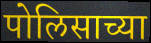
पोलिसाच्या